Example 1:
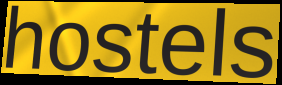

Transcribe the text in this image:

hostels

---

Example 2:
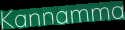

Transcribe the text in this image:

Kannamma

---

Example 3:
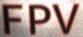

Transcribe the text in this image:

FPV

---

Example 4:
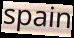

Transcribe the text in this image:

spain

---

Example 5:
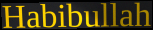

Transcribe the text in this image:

Habibullah